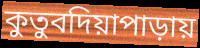
কুতুবদিয়াপাড়ায়